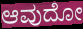
ಆವುದೋ